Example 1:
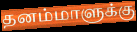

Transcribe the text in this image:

தனம்மாளுக்கு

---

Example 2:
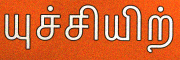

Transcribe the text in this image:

யுச்சியிற்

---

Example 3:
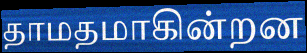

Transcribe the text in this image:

தாமதமாகின்றன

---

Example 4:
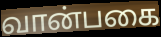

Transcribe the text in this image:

வான்பகை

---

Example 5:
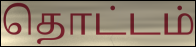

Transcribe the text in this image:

தொட்டம்